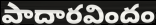
పాదారవిందం